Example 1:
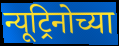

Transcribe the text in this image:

न्यूट्रिनोच्या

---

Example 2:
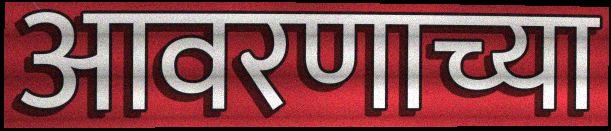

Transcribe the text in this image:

आवरणाच्या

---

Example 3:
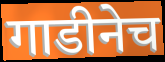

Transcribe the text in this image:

गाडीनेच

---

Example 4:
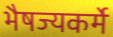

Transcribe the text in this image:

भैषज्यकर्मे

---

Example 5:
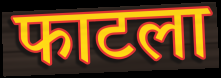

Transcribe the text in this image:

फाटला